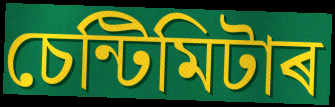
চেন্টিমিটাৰ